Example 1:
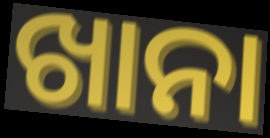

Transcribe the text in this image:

ଖାନା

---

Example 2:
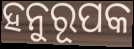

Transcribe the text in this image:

ହନୁରୂପକ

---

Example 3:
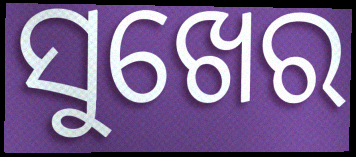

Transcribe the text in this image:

ସୁଖେର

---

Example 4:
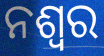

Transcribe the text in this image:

ନଶ୍ଵର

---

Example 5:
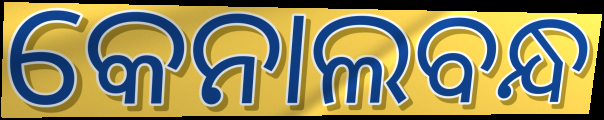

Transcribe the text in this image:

କେନାଲବନ୍ଧ